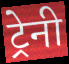
ट्रेनी